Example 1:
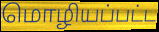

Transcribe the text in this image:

மொழியப்பட்ட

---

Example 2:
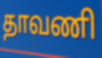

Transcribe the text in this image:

தாவணி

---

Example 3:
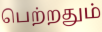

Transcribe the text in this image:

பெற்றதும்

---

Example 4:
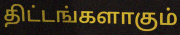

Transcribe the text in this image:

திட்டங்களாகும்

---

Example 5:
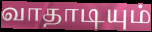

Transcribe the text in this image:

வாதாடியும்